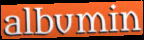
albumin